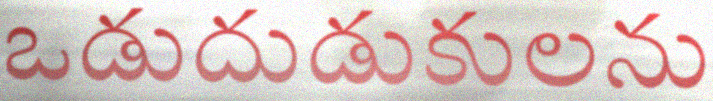
ఒడుదుడుకులను